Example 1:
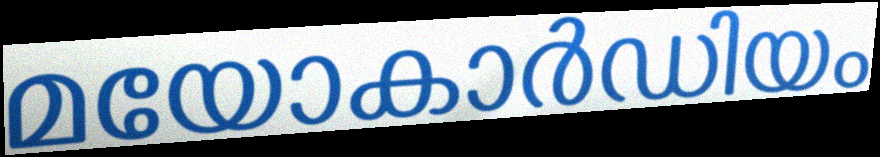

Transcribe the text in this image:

മയോകാർഡിയം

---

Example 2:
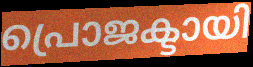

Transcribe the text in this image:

പ്രൊജക്ടായി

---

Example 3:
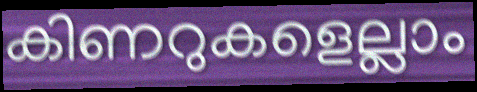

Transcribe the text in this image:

കിണറുകളെല്ലാം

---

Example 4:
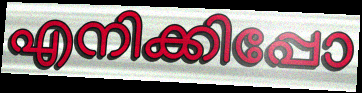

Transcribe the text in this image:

എനിക്കിപ്പോ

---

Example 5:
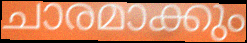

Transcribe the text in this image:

ചാരമാക്കും